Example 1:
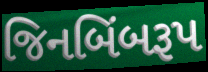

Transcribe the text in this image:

જિનબિંબરૂપ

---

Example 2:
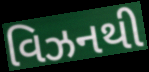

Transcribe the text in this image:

વિઝનથી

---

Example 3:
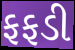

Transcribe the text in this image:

ફફડી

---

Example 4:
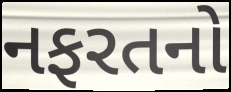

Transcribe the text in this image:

નફરતનો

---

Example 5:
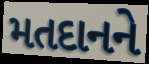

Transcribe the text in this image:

મતદાનને